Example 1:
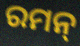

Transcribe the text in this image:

ରମନ୍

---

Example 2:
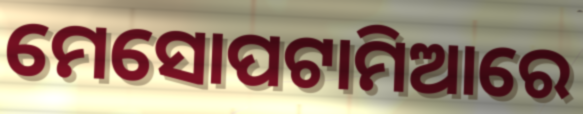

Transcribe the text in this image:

ମେସୋପଟାମିଆରେ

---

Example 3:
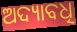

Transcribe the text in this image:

ଅଦ୍ୟାବଧି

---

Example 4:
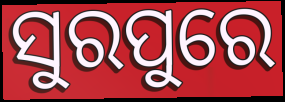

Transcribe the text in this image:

ସୁରପୁରେ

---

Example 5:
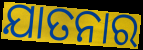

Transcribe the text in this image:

ଯାତନାର